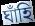
ঘাঁহি